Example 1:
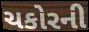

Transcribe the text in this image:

ચકોરની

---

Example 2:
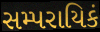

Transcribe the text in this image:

સમ્પરાયિકં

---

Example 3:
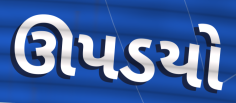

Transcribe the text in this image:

ઊપડયો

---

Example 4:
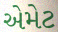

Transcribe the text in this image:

એમેટ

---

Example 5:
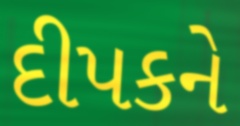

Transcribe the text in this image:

દીપકને